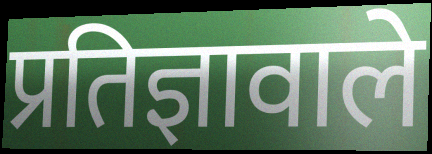
प्रतिज्ञावाले